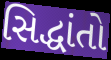
સિદ્ધાંતો